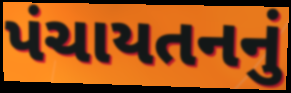
પંચાયતનનું